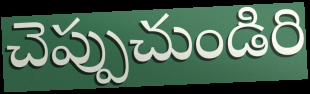
చెప్పుచుండిరి